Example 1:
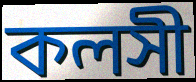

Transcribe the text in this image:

কলসী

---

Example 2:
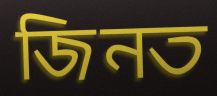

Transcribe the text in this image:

জিনত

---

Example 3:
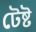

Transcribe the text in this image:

টেষ্ট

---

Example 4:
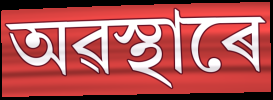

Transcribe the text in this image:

অৱস্থাৰে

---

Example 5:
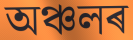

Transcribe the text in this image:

অঞ্চলৰ